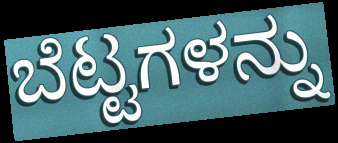
ಬೆಟ್ಟಗಳನ್ನು